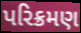
પરિક્રમણ